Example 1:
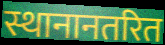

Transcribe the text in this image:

स्थानानतरित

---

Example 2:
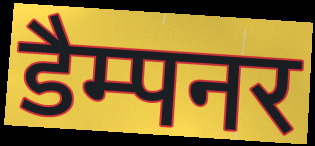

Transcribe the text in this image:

डैम्पनर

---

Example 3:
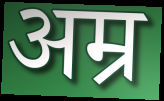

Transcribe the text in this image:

अम्र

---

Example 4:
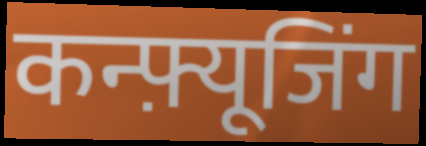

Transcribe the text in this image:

कन्फ़्यूजिंग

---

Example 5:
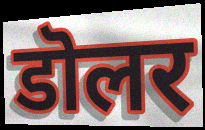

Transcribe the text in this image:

डॊलर